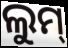
ଲୁମ୍